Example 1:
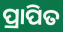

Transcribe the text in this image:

ପ୍ରାପିତ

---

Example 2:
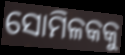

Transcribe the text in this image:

ସୋମିଳକକୁ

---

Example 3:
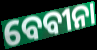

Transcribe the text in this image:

ବେବୀନା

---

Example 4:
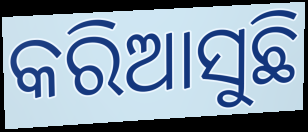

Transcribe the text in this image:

କରିଆସୁଛି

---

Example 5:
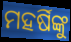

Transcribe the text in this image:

ମହର୍ଷିଙ୍କୁ